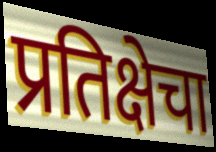
प्रतिक्षेचा